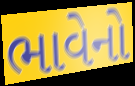
ભાવેનો